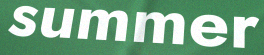
summer